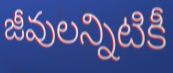
జీవులన్నిటికీ